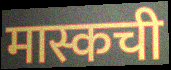
मास्कची